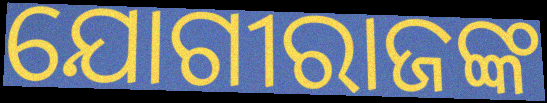
ଯୋଗୀରାଜଙ୍କ